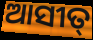
ଆସୀତ୍